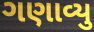
ગણાવ્યુ